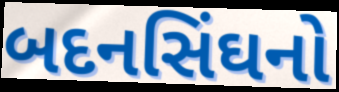
બદનસિંઘનો